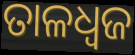
ତାଳଧ୍ୱଜ